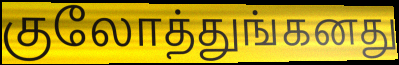
குலோத்துங்கனது